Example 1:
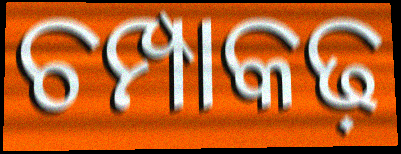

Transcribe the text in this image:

ଚମ୍ପାକଢ଼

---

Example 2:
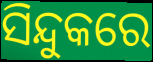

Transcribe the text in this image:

ସିନ୍ଦୁକରେ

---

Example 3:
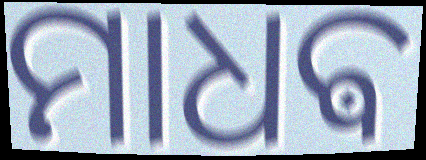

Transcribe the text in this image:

ମାଧଵ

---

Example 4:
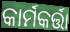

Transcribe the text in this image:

କାର୍ମକର୍ତ୍ତା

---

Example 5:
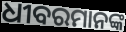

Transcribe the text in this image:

ଧୀବରମାନଙ୍କ